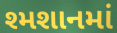
શ્મશાનમાં